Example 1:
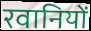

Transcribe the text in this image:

रवानियों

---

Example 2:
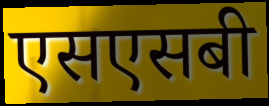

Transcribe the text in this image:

एसएसबी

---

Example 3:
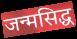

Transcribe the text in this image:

जन्मसिद्ध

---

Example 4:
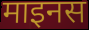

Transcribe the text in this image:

माइनस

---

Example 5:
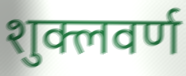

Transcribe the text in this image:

शुक्लवर्ण